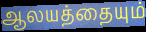
ஆலயத்தையும்